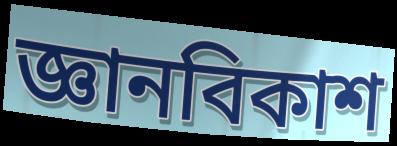
জ্ঞানবিকাশ